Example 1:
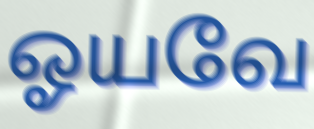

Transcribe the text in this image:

ஓயவே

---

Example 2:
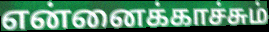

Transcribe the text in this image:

என்னைக்காச்சும்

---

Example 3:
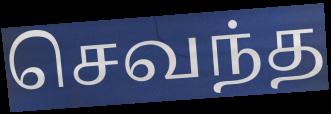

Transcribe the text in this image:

செவந்த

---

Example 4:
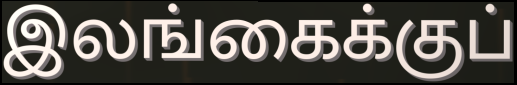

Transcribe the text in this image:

இலங்கைக்குப்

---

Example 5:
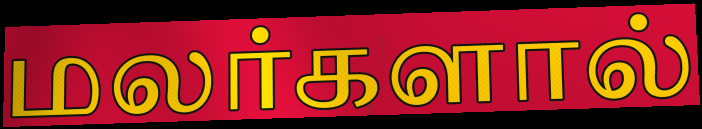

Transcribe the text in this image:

மலர்களால்